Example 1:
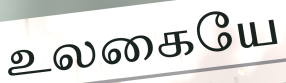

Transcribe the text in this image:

உலகையே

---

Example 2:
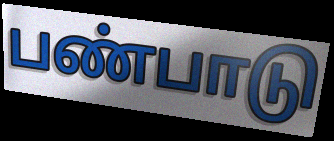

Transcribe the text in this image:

பண்பாடு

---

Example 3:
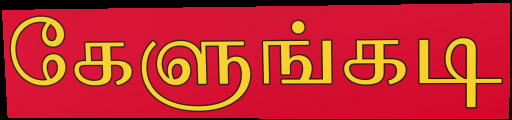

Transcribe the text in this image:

கேளுங்கடி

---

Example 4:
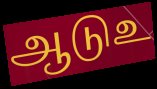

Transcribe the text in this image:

ஆடுஉ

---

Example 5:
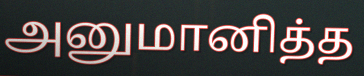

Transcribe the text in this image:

அனுமானித்த